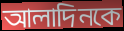
আলাদিনকে